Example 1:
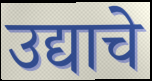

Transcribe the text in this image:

उद्याचे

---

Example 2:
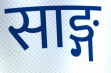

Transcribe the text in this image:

साङ्ग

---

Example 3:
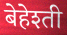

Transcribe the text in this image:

बेहेश्ती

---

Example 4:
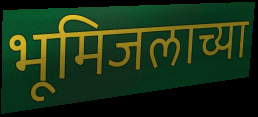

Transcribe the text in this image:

भूमिजलाच्या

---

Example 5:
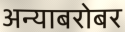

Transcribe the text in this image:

अन्याबरोबर